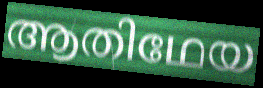
ആതിഥേയ